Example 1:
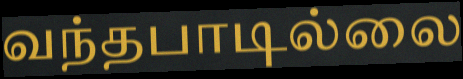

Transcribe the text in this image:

வந்தபாடில்லை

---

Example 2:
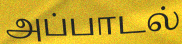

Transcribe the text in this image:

அப்பாடல்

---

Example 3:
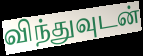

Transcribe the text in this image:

விந்துவுடன்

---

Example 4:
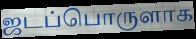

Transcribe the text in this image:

ஜடப்பொருளாக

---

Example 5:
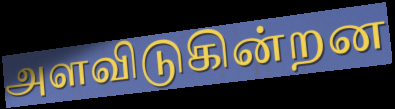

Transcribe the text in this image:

அளவிடுகின்றன